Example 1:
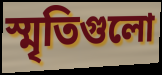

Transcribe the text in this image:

স্মৃতিগুলো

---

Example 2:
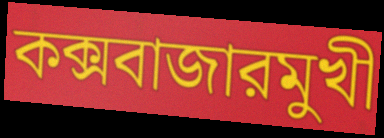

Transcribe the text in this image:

কক্সবাজারমুখী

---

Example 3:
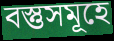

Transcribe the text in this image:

বস্তুসমূহে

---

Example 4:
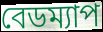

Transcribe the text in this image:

বেডম্যাপ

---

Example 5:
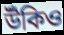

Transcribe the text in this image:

উঁকিও